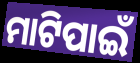
ମାଟିପାଇଁ